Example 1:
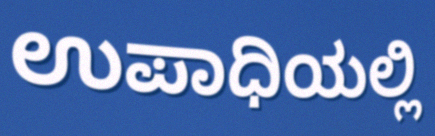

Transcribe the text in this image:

ಉಪಾಧಿಯಲ್ಲಿ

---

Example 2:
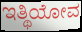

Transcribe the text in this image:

ಇತ್ಥಿಯೋವ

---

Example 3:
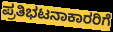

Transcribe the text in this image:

ಪ್ರತಿಭಟನಾಕಾರರಿಗೆ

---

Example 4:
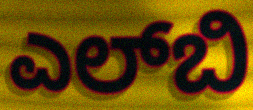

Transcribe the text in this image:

ಎಲ್‌ಬಿ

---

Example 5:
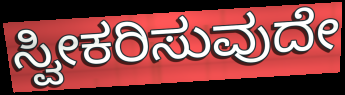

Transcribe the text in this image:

ಸ್ವೀಕರಿಸುವುದೇ